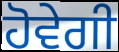
ਹੋਵੇਗੀ